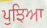
ਪੁਝਿਆ